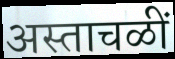
अस्ताचळीं